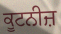
ਕੂਟਨੀਜ਼